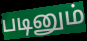
படினும்